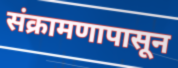
संक्रामणापासून